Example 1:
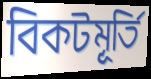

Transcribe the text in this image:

বিকটমূর্তি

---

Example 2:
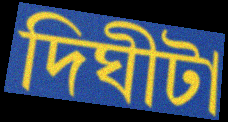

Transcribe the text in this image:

দিঘীটা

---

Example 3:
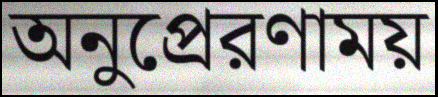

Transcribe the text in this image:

অনুপ্রেরণাময়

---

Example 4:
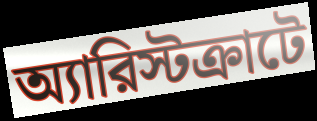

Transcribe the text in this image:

অ্যারিস্টক্রাটে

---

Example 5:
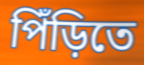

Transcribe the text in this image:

পিঁড়িতে